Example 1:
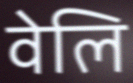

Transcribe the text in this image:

वेलि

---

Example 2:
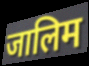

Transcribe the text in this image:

जालिम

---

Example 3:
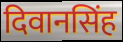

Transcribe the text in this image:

दिवानसिंह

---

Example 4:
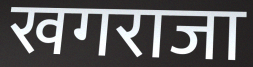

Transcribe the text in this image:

खगराजा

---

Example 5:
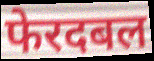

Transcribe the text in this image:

फेरदबल